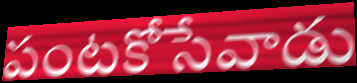
పంటకోసేవాడు